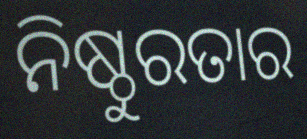
ନିଷ୍ଠୁରତାର